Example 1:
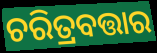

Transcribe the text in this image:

ଚରିତ୍ରବତ୍ତାର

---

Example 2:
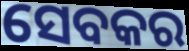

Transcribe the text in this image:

ସେବକର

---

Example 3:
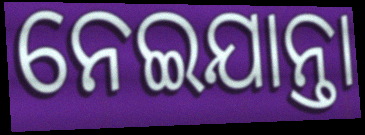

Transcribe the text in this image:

ନେଇଯାନ୍ତା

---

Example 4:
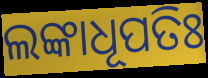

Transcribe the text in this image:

ଲଙ୍କାଧୂପତିଃ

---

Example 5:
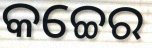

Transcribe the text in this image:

କଚ୍ଚେର